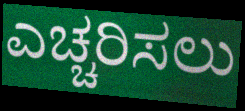
ಎಚ್ಚರಿಸಲು